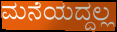
ಮನೆಯದ್ದಲ್ಲ